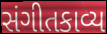
સંગીતકાવ્ય